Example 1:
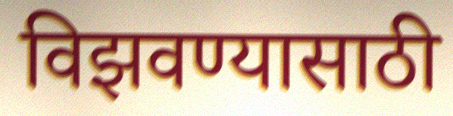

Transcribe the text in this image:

विझवण्यासाठी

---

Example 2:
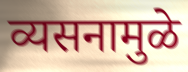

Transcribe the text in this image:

व्यसनामुळे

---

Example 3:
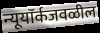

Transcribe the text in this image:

न्यूयॉर्कजवळील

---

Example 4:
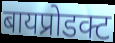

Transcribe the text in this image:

बायप्रोडक्ट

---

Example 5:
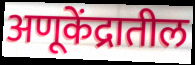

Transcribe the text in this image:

अणूकेंद्रातील